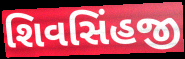
શિવસિંહજી